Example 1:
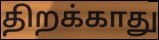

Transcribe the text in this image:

திறக்காது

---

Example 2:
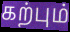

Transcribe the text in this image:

கற்பும்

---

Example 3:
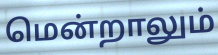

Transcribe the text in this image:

மென்றாலும்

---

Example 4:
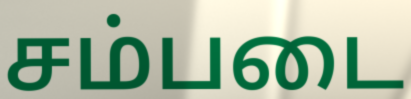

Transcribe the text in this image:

சம்படை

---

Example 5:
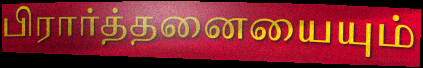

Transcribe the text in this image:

பிரார்த்தனையையும்